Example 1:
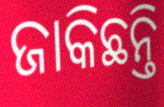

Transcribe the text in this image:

ଜାକିଛନ୍ତି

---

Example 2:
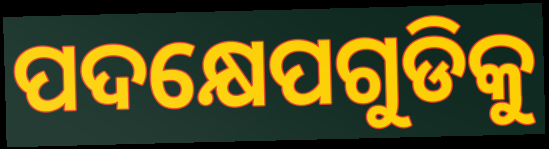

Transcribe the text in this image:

ପଦକ୍ଷେପଗୁଡିକୁ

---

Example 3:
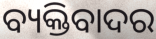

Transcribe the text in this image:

ବ୍ୟକ୍ତିବାଦର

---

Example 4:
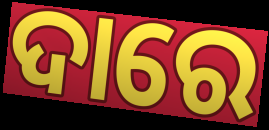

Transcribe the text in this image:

ଦାରେ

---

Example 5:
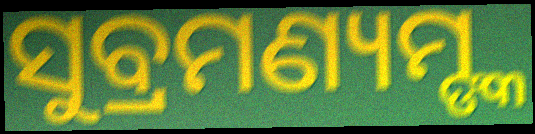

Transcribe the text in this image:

ସୁବ୍ରମଣ୍ୟମ୍ଙ୍କ